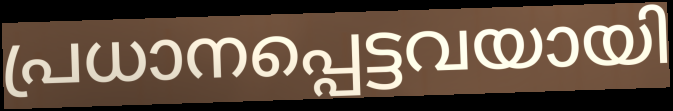
പ്രധാനപ്പെട്ടവയായി